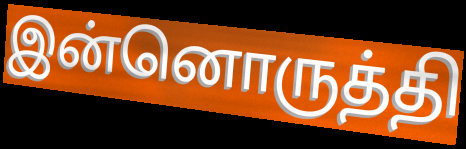
இன்னொருத்தி